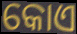
କୋଏ